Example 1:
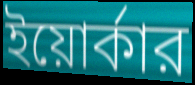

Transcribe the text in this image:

ইয়োর্কার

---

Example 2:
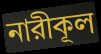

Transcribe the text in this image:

নারীকূল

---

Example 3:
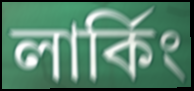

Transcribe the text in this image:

লার্কিং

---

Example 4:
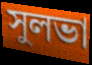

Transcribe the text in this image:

সুলভা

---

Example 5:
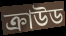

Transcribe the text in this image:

ক্রাউড